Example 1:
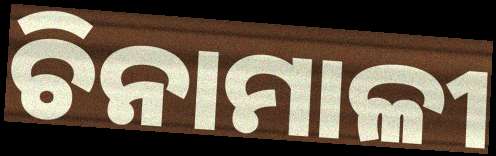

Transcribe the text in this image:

ଚିନାମାଳୀ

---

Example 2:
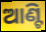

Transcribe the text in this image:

ଆଣ୍ଟି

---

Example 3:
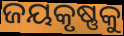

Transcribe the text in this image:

ଜୟକୃଷ୍ଣକୁ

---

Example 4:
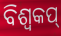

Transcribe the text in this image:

ବିଶ୍ୱକପ୍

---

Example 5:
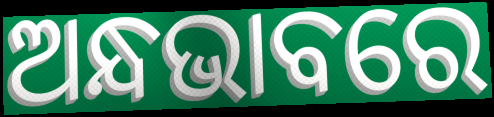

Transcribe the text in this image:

ଅନ୍ଧଭାବରେ